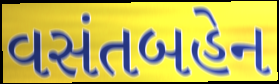
વસંતબહેન